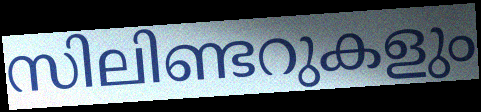
സിലിണ്ടറുകളും